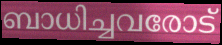
ബാധിച്ചവരോട്